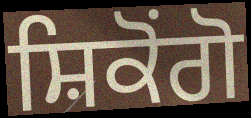
ਸ਼ਿਕੋਂਗੋ